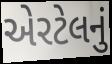
એરટેલનું